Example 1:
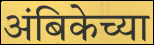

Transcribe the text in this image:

अंबिकेच्या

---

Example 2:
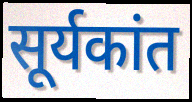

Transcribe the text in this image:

सूर्यकांत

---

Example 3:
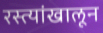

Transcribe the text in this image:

रस्त्यांखालून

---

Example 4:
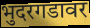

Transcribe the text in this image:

भुदरगडावर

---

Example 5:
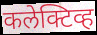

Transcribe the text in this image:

कलेक्टिव्ह